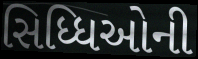
સિધ્ધિઓની